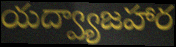
యద్వ్యాజహార